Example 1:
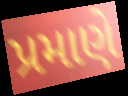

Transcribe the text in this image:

પ્રમાણે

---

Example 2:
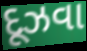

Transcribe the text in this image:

દૂઝવા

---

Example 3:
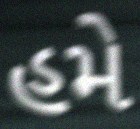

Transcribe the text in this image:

હમે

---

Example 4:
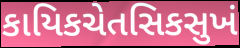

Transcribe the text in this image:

કાયિકચેતસિકસુખં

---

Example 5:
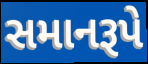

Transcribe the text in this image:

સમાનરૂપે